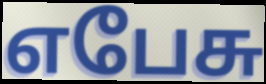
எபேசு